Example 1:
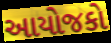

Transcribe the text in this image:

આયોજકો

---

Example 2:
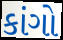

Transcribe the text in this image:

કાંગો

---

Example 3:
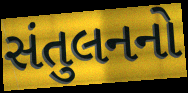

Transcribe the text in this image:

સંતુલનનો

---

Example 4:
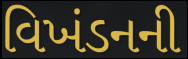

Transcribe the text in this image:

વિખંડનની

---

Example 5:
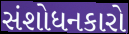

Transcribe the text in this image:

સંશોધનકારો